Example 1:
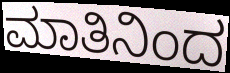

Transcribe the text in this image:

ಮಾತಿನಿಂದ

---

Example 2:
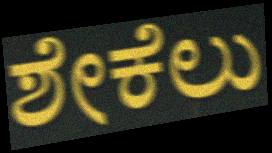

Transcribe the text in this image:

ಶೇಕೆಲು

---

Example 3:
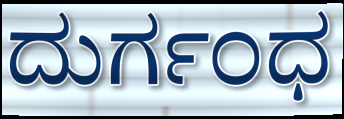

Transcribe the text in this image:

ದುರ್ಗಂಧ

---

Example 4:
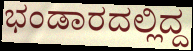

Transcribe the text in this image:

ಭಂಡಾರದಲ್ಲಿದ್ದ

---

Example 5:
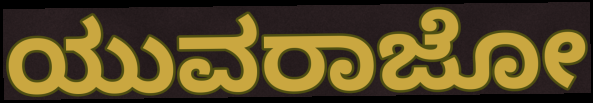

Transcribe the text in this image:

ಯುವರಾಜೋ